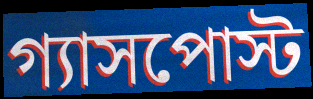
গ্যাসপোস্ট